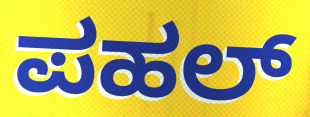
ಪಹಲ್